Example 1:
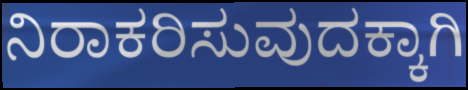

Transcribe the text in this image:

ನಿರಾಕರಿಸುವುದಕ್ಕಾಗಿ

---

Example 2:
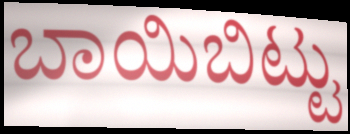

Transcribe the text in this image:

ಬಾಯಿಬಿಟ್ಟು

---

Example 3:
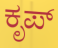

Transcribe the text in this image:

ಕೃಪ್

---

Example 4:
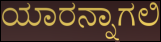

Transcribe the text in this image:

ಯಾರನ್ನಾಗಲಿ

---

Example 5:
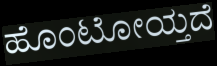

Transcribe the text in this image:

ಹೊಂಟೋಯ್ತದೆ